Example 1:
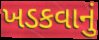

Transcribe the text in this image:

ખડકવાનું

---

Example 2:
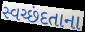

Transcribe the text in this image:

સ્વચ્છંદતાના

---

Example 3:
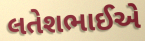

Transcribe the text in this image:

લતેશભાઈએ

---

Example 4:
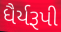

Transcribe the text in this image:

ધૈર્યરૂપી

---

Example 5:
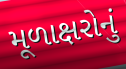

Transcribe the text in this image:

મૂળાક્ષરોનું